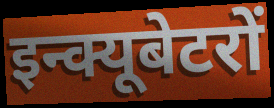
इन्क्यूबेटरों